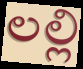
లల్లి